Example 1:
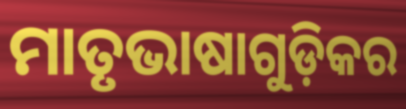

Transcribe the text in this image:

ମାତୃଭାଷାଗୁଡ଼ିକର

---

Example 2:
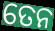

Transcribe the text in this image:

ତେନ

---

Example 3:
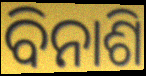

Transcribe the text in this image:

ବିନାଶି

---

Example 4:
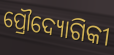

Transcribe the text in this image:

ପ୍ରୌଦ୍ୟୋଗିକୀ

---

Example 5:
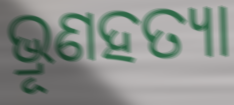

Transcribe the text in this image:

ଭ୍ରୂଣହତ୍ୟା